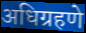
अधिग्रहणे